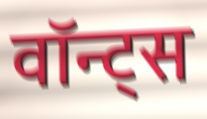
वॉन्ट्स